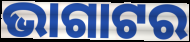
ଭାଗାଟର